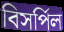
বিসর্পিল